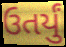
ઉતર્યું